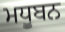
ਮਧੂਬਨ